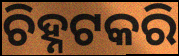
ଚିହ୍ନଟକରି